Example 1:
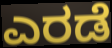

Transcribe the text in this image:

ಎರಡೆ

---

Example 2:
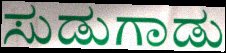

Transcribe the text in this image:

ಸುಡುಗಾಡು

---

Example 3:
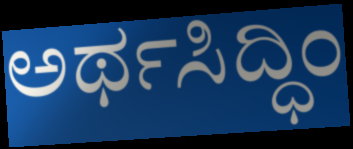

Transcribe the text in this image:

ಅರ್ಥಸಿದ್ಧಿಂ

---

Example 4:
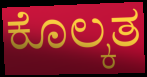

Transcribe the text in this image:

ಕೊಲ್ಕತ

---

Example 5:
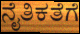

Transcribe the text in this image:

ನೈತಿಕತೆಗೆ